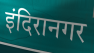
इंदिरानगर